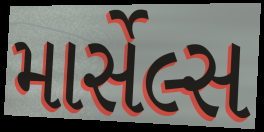
માર્સેલ્સ